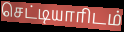
செட்டியாரிடம்